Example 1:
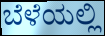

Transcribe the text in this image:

ಬೆಳೆಯಲ್ಲಿ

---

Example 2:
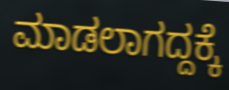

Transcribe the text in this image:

ಮಾಡಲಾಗದ್ದಕ್ಕೆ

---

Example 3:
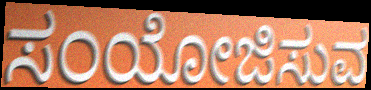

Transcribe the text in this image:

ಸಂಯೋಜಿಸುವ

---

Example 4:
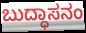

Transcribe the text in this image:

ಬುದ್ಧಾಸನಂ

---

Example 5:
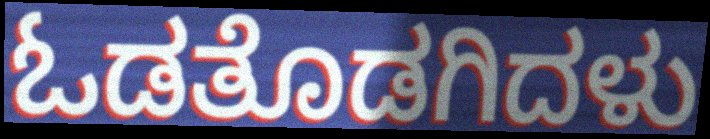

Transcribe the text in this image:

ಓಡತೊಡಗಿದಳು